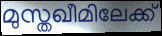
മുസ്തഖീമിലേക്ക്